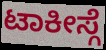
ಟಾಕೀಸ್ಗೆ